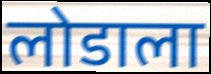
लोडाला